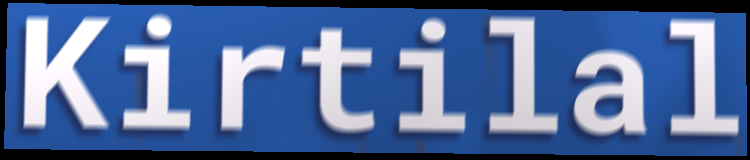
Kirtilal